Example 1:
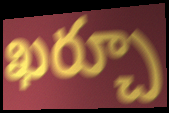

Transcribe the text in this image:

ఖర్చూ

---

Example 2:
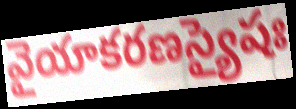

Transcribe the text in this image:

వైయాకరణస్యైషః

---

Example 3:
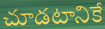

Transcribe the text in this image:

చూడటానికే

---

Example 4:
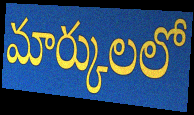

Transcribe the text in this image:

మార్కులలో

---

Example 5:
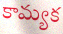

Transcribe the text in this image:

కామ్యక